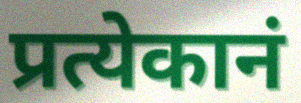
प्रत्येकानं